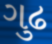
ગુઢ